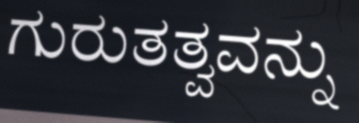
ಗುರುತತ್ವವನ್ನು